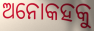
ଅନୋକହକୁ